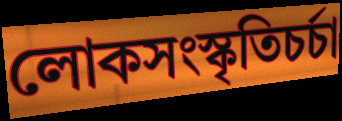
লোকসংস্কৃতিচর্চা